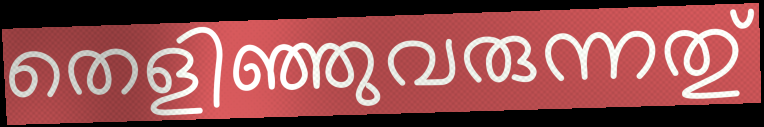
തെളിഞ്ഞുവരുന്നതു്